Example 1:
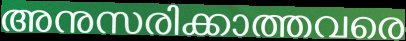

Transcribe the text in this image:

അനുസരിക്കാത്തവരെ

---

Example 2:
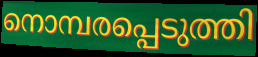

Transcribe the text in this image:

നൊമ്പരപ്പെടുത്തി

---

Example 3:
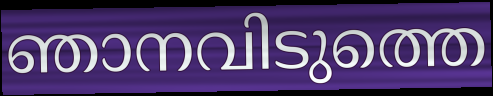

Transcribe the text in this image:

ഞാനവിടുത്തെ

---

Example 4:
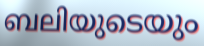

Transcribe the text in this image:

ബലിയുടെയും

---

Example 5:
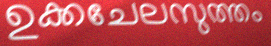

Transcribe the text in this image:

ഉക്കചേലസുത്തം